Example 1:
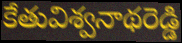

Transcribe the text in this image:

కేతువిశ్వనాథరెడ్డి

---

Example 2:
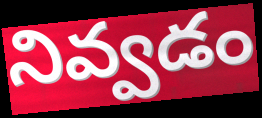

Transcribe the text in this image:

నివ్వడం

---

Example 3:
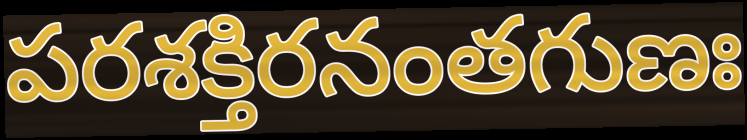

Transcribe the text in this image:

పరశక్తిరనంతగుణః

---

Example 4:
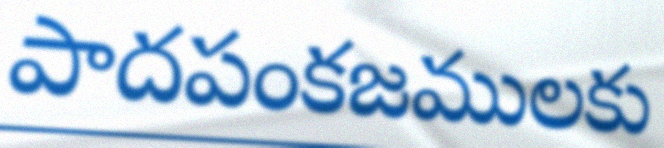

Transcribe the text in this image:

పాదపంకజములకు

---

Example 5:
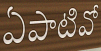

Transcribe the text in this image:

ఏపాటివో